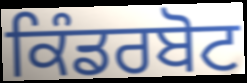
ਕਿੰਡਰਬੋਟ